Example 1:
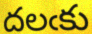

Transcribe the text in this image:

దలఁకు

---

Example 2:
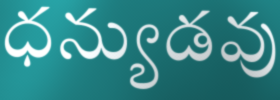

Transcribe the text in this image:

ధన్యుడవు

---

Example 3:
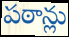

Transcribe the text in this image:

పఠాన్లు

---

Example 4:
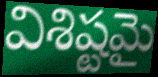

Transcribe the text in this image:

విశిష్టమై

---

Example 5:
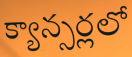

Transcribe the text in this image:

క్యాన్సర్లలో